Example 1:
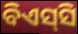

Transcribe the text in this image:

ବିଏସ୍‌ସି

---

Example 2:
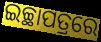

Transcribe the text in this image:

ଇଚ୍ଛାପତ୍ରରେ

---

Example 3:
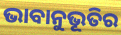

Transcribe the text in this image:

ଭାବାନୁଭୂତିର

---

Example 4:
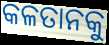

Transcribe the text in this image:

କଳତାନକୁ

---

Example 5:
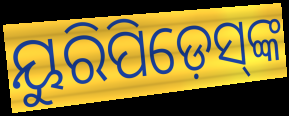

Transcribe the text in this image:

ୟୁରିପିଡ଼େସ୍‌ଙ୍କ